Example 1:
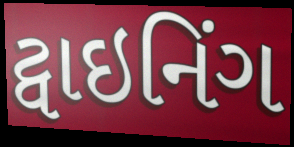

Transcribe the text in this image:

ટ્વાઇનિંગ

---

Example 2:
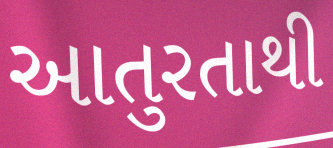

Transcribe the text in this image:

આતુરતાથી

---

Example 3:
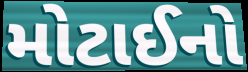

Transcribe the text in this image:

મોટાઈનો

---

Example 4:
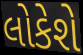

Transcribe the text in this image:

લોકેશે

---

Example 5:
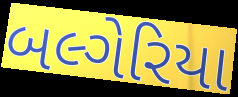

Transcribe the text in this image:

બલ્ગેરિયા